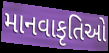
માનવાકૃતિઓ